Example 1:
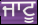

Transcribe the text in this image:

ਜਾਟੂ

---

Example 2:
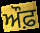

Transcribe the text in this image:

ਔਫ਼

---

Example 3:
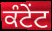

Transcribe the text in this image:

ਕੰਟੇਂਟ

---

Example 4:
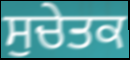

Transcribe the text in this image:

ਸੁਚੇਤਕ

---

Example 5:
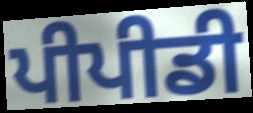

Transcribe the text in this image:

ਪੀਪੀਡੀ